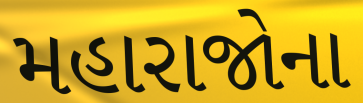
મહારાજોના